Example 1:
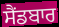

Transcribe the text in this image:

ਸੈਂਡਬਾਰ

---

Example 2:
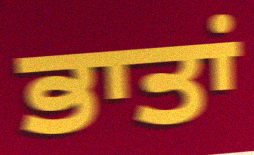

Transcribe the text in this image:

ਭਾਤਾਂ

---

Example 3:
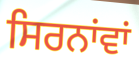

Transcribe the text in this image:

ਸਿਰਨਾਂਵਾਂ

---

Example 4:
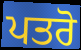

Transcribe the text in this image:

ਪਤਰੋ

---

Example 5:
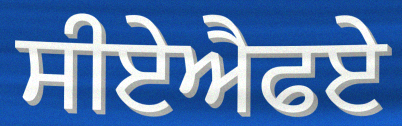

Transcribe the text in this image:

ਸੀਏਐਫਏ